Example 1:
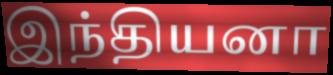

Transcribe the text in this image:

இந்தியனா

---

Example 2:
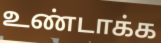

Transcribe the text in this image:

உண்டாக்க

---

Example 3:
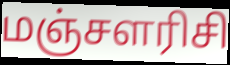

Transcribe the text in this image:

மஞ்சளரிசி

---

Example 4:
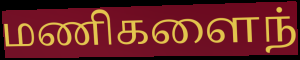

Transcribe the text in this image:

மணிகளைந்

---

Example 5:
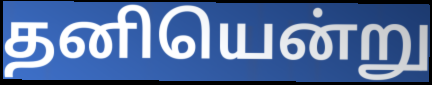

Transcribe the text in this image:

தனியென்று